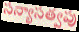
సన్యాసత్వపు